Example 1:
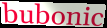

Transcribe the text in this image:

bubonic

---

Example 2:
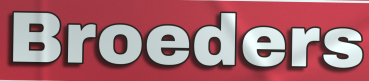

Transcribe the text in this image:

Broeders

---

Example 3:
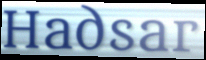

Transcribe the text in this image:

Hadsar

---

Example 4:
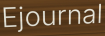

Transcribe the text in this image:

Ejournal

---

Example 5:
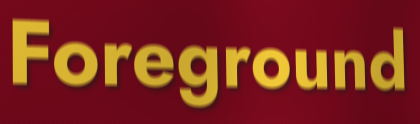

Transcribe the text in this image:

Foreground